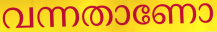
വന്നതാണോ